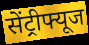
सेंट्रीफ्यूज